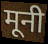
मूनी